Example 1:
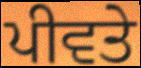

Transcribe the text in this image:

ਪੀਵਤੇ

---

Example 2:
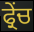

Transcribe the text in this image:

ਫ੍ਰੇਂਚ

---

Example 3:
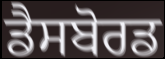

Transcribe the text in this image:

ਡੈਸਬੋਰਡ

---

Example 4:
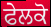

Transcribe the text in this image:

ਫੇਲਕੋ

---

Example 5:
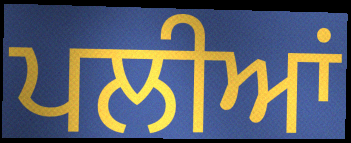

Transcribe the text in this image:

ਪਲੀਆਂ